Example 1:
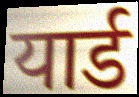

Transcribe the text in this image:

यार्ड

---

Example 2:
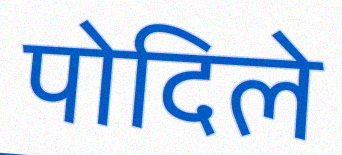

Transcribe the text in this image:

पोदिले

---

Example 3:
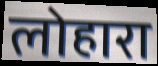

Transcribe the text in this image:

लोहारा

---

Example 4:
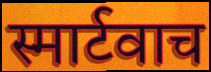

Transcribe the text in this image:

स्मार्टवाच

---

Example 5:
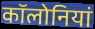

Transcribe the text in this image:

कॉलोनियां